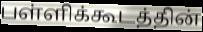
பள்ளிக்கூடத்தின்